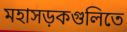
মহাসড়কগুলিতে